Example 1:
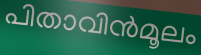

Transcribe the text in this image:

പിതാവിൻമൂലം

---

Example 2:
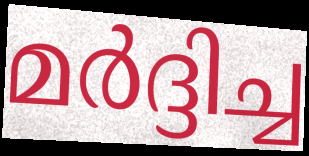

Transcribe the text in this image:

മർദ്ദിച്ച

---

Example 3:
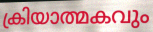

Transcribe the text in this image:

ക്രിയാത്മകവും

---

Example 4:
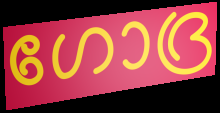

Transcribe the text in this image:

ഗോദ്ര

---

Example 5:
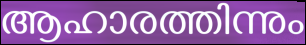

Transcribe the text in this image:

ആഹാരത്തിന്നും